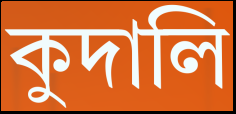
কুদালি